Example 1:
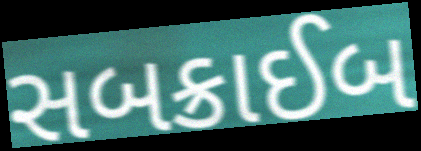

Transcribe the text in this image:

સબક્રાઈબ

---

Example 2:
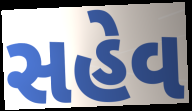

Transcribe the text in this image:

સહેવ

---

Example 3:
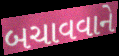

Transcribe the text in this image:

બચાવવાને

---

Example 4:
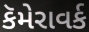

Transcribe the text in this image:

કૅમેરાવર્ક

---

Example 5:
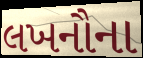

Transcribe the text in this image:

લખનૌના